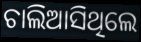
ଚାଲିଆସିଥିଲେ